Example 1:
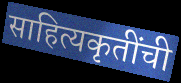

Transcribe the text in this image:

साहित्यकृतींची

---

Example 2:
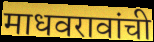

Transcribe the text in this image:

माधवरावांची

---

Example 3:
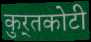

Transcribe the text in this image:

कुर्तकोटी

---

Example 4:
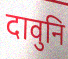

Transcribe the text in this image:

दावुनि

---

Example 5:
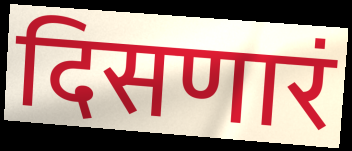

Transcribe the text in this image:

दिसणारं